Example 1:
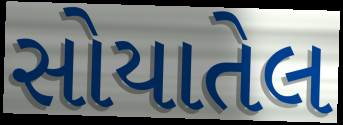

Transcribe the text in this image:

સોયાતેલ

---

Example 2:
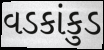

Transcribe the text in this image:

વડકાંકુડ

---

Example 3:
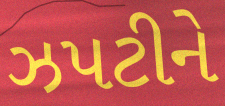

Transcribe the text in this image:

ઝપટીને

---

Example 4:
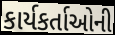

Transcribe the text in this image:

કાર્યકર્તાઓની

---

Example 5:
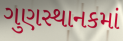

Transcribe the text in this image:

ગુણસ્થાનકમાં